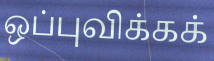
ஒப்புவிக்கக்